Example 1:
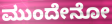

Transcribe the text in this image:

ಮುಂದೇನೋ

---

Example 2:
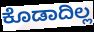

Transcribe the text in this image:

ಕೊಡಾದಿಲ್ಲ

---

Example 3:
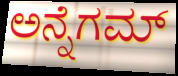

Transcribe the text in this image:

ಅನ್ನೆಗಮ್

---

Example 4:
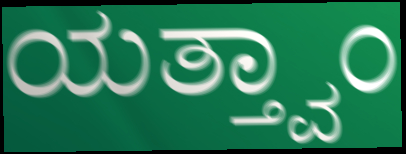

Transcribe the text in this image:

ಯತ್ತ್ವಾಂ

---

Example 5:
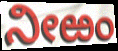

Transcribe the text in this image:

ನೀಱಂ